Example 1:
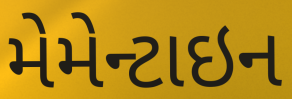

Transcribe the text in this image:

મેમેન્ટાઇન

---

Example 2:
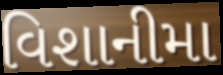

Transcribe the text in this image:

વિશાનીમા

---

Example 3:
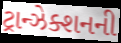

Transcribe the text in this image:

ટ્રાન્ઝેક્શનની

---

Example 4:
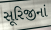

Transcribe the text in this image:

સૂરિજીનાં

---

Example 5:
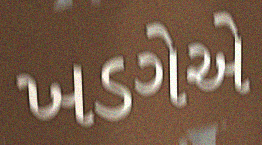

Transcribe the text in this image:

ખડગેએ